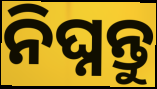
ନିଘ୍ନନ୍ତୁ